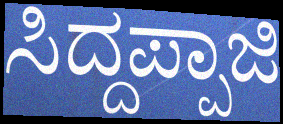
ಸಿದ್ದಪ್ಪಾಜಿ